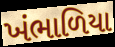
ખંભાળિયા